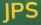
JPS